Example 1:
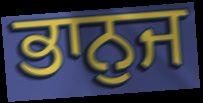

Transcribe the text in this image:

ਭਾਨੁਜ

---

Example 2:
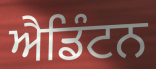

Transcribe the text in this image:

ਐਡਿੰਟਨ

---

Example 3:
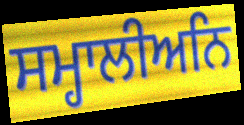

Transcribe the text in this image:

ਸਮ੍ਹਾਲੀਅਨਿ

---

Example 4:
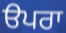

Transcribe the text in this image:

ੳਪਰਾ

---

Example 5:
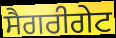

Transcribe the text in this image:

ਸੈਗਰੀਗੇਟ